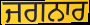
ਜਗਨਾਰ